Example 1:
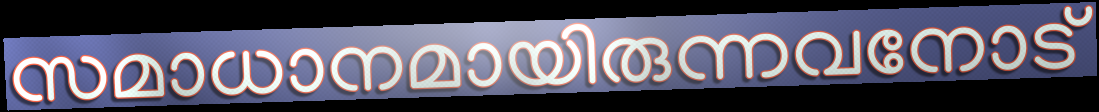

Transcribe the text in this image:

സമാധാനമായിരുന്നവനോട്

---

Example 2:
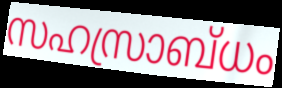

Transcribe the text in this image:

സഹസ്രാബ്ധം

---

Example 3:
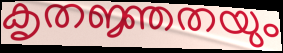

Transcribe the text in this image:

കൃതജ്ഞതയും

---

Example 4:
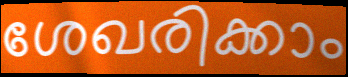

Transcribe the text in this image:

ശേഖരിക്കാം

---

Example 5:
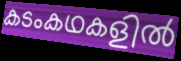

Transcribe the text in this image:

കടംകഥകളിൽ